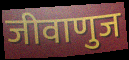
जीवाणुज